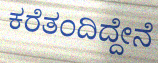
ಕರೆತಂದಿದ್ದೇನೆ